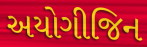
અયોગીજિન